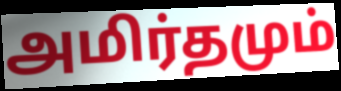
அமிர்தமும்